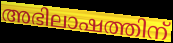
അഭിലാഷത്തിന്